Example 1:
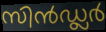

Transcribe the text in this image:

സിൻഡ്ലർ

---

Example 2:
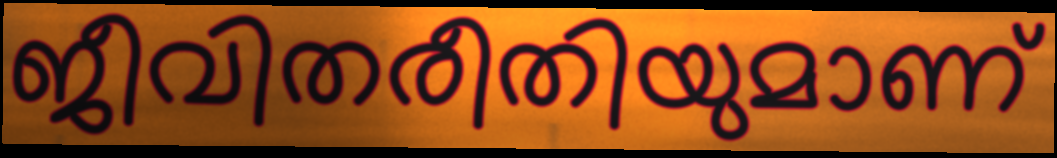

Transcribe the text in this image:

ജീവിതരീതിയുമാണ്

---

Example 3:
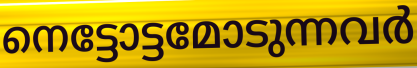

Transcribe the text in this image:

നെട്ടോട്ടമോടുന്നവർ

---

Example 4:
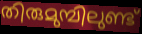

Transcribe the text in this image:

തിരുമുമ്പിലുണ്ട്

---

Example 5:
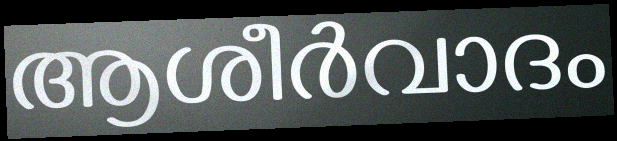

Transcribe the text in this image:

ആശീർവാദം